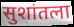
सुशांतला